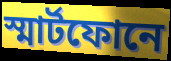
স্মার্টফোনে